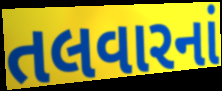
તલવારનાં